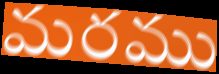
మరము